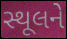
સ્થૂલને